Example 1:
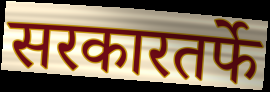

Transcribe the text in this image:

सरकारतर्फे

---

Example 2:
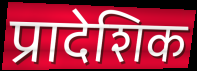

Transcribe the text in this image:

प्रादेशिक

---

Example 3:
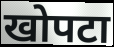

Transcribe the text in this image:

खोपटा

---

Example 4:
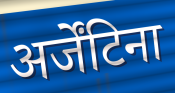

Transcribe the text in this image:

अर्जेंटिना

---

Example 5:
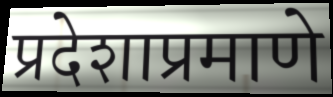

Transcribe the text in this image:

प्रदेशाप्रमाणे